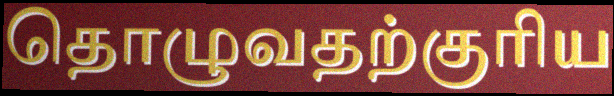
தொழுவதற்குரிய